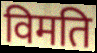
विमति